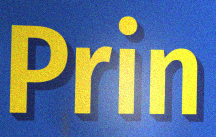
Prin